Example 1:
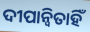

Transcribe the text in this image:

ଦୀପାନ୍ୱିତାହିଁ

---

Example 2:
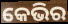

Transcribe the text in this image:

କେଭିର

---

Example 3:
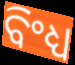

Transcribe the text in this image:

ବିଂଧ୍ୟ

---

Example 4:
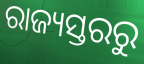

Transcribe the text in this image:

ରାଜ୍ୟସ୍ତରରୁ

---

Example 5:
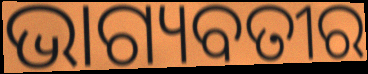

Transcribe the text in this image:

ଭାଗ୍ୟବତୀର